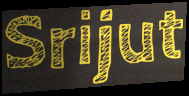
Srijut